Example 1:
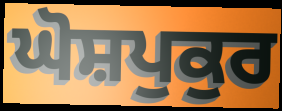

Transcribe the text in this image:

ਘੋਸ਼ਪੁਕੁਰ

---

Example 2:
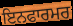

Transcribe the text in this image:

ਇਨਫਾਰਮਰ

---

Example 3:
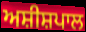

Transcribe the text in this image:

ਅਸ਼ੀਸ਼ਪਾਲ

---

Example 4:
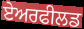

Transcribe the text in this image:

ਏਅਰਫੀਲਡ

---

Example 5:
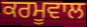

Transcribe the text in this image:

ਕਰਮੂਵਾਲ